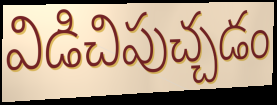
విడిచిపుచ్చడం